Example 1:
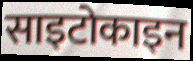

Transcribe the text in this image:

साइटोकाइन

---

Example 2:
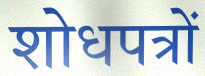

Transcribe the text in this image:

शोधपत्रों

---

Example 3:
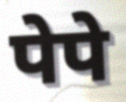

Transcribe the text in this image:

पेपे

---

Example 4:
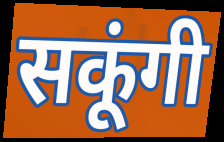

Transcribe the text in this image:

सकूंगी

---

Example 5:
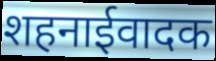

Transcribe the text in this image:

शहनाईवादक